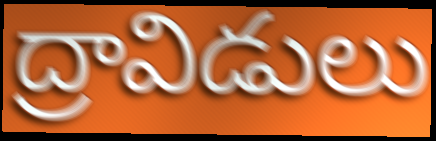
ద్రావిడులు